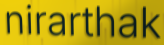
nirarthak